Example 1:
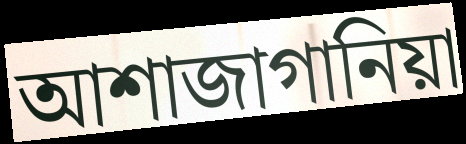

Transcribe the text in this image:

আশাজাগানিয়া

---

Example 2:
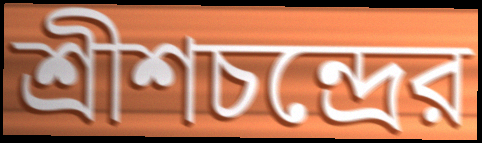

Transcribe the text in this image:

শ্রীশচন্দ্রের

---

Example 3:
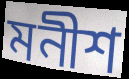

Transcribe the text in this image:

মনীশ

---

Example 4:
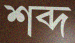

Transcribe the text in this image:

শব্দ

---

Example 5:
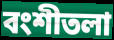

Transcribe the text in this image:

বংশীতলা